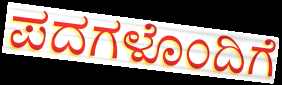
ಪದಗಳೊಂದಿಗೆ